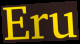
Eru